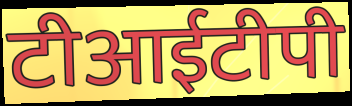
टीआईटीपी